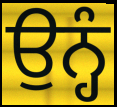
ਉਨ੍ਹੰ